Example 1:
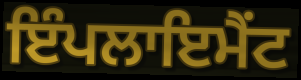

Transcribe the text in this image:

ਇੰਪਲਾਇਮੈਂਟ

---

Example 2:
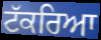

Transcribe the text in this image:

ਟੱਕਰਿਆ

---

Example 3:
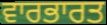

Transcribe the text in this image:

ਵਾਰਭਾਰਤ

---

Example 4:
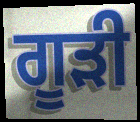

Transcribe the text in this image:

ਗੂੜੀ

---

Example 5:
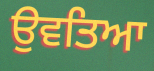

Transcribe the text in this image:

ਉਵਤਿਆ